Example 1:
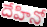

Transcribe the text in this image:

దేహినో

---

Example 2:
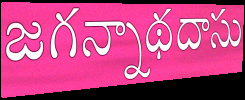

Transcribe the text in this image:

జగన్నాథదాసు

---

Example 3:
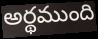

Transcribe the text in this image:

అర్థముంది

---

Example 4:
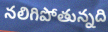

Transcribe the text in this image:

నలిగిపోతున్నది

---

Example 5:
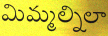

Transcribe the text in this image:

మిమ్మల్నిలా